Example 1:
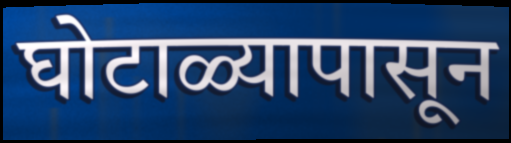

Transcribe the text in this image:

घोटाळ्यापासून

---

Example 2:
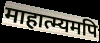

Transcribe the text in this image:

माहात्म्यमपि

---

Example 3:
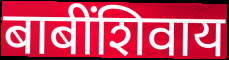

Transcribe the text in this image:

बाबींशिवाय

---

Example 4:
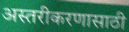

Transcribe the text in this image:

अस्तरीकरणासाठी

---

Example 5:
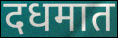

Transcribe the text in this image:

दधमात